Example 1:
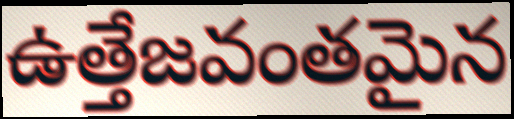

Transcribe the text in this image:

ఉత్తేజవంతమైన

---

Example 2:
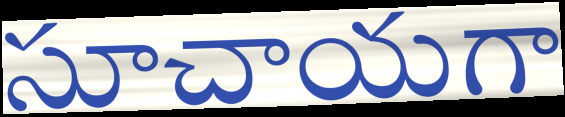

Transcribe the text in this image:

సూచాయగా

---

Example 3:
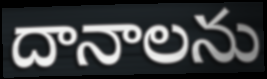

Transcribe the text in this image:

దానాలను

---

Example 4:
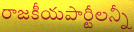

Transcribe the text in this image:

రాజకీయపార్టీలన్నీ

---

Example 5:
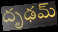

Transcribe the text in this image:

దృఢమ్